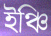
ইঞ্চি